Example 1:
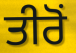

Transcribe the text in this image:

ਤੀਰੋਂ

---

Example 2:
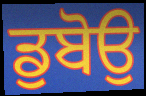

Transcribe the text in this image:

ਡੁਬੋਉ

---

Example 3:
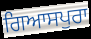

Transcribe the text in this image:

ਗਿਆਸਪੁਰਾ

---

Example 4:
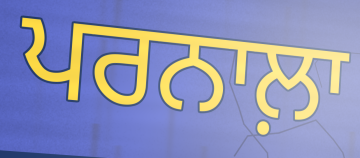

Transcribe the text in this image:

ਪਰਨਾਲ਼ਾ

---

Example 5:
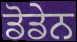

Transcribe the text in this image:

ਡੋਡੇਨ